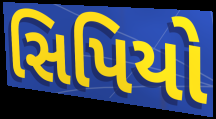
સિપિયો